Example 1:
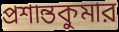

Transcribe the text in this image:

প্রশান্তকুমার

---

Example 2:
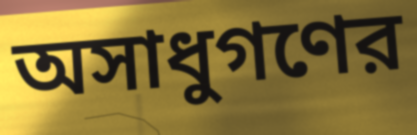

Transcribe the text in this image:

অসাধুগণের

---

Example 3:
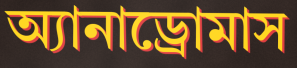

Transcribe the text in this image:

অ্যানাড্রোমাস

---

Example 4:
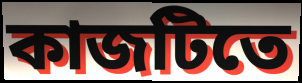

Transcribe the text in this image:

কাজটিতে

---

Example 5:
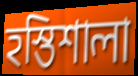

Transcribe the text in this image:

হস্তিশালা